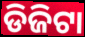
ଡିଜିଟା